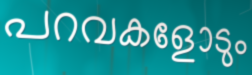
പറവകളോടും